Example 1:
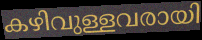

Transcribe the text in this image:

കഴിവുള്ളവരായി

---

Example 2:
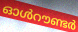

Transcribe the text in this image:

ഓൾറൗണ്ടർ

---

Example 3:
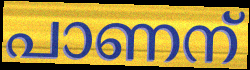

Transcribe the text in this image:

പാണന്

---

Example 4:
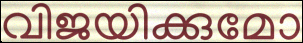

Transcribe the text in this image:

വിജയിക്കുമോ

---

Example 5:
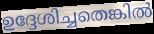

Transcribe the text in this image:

ഉദ്ദേശിച്ചതെങ്കിൽ